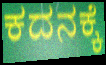
ಕದನಕ್ಕೆ